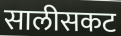
सालीसकट